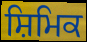
ਸ਼ਿਮਿਕ